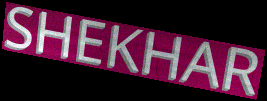
SHEKHAR